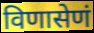
विणासेणं